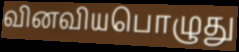
வினவியபொழுது